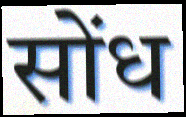
सोंध